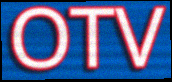
OTV